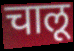
चालू